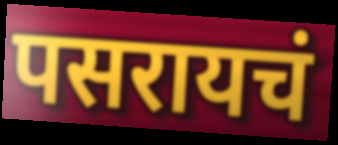
पसरायचं